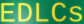
EDLCs